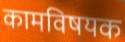
कामविषयक